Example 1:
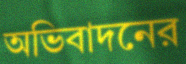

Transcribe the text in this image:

অভিবাদনের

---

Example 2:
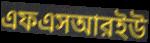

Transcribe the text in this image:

এফএসআরইউ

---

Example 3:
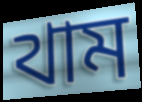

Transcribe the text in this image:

থাম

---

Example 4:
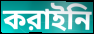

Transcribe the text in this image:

করাইনি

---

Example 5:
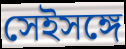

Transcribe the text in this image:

সেইসঙ্গে